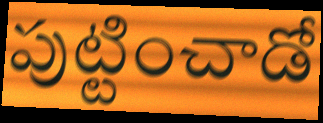
పుట్టించాడో